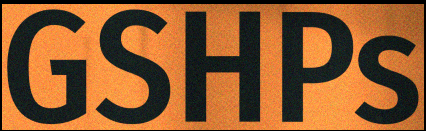
GSHPs